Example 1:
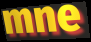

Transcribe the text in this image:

mne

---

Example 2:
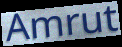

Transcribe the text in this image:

Amrut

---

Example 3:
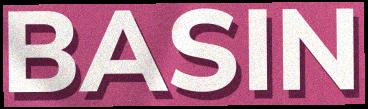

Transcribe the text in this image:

BASIN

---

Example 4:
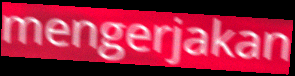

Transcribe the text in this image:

mengerjakan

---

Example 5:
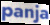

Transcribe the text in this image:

panja